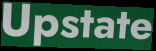
Upstate